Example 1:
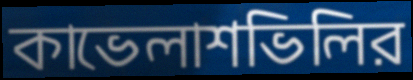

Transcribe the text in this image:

কাভেলাশভিলির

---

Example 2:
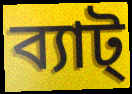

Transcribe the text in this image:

ব্যাট্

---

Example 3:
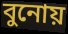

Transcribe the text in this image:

বুনোয়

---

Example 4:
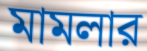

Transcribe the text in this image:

মামলার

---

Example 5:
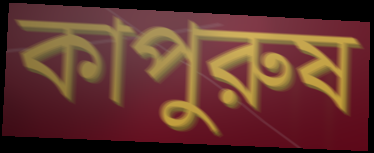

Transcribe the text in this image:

কাপুরুষ